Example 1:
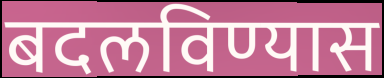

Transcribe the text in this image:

बदलविण्यास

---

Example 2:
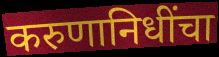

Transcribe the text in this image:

करुणानिधींचा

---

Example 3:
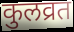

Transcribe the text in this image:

कुलव्रत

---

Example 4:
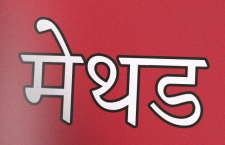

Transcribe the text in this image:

मेथड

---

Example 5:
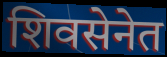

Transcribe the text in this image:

शिवसेनेत